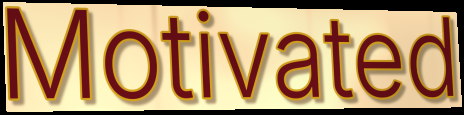
Motivated